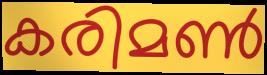
കരിമൺ